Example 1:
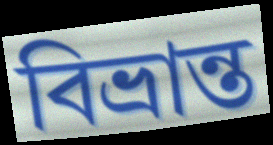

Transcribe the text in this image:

বিভ্ৰান্ত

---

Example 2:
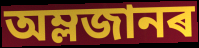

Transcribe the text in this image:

অম্লজানৰ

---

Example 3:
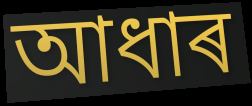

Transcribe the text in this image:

আধাৰ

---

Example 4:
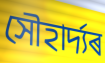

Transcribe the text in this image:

সৌহাৰ্দ্যৰ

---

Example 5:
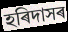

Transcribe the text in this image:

হৰিদাসৰ